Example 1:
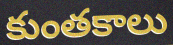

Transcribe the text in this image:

కుంతకాలు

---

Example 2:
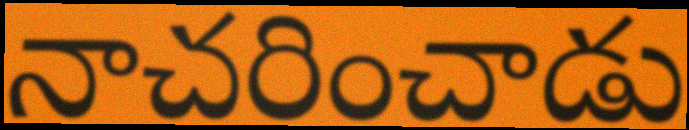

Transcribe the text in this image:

నాచరించాడు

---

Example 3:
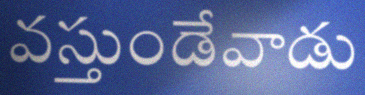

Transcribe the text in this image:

వస్తుండేవాడు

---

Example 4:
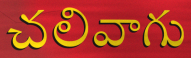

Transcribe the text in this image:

చలివాగు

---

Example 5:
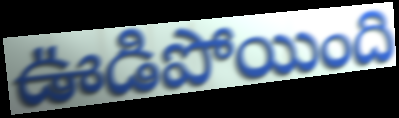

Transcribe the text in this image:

ఊడిపోయింది